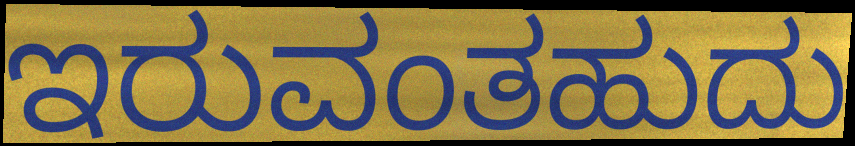
ಇರುವಂತಹುದು